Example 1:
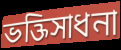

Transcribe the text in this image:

ভক্তিসাধনা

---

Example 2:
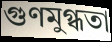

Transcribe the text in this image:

গুণমুগ্ধতা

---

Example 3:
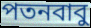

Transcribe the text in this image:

পতনবাবু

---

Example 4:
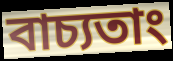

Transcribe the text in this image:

বাচ্যতাং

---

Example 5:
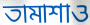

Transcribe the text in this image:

তামাশাও